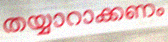
തയ്യാറാക്കണം